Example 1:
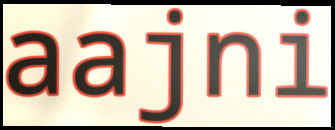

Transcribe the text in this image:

aajni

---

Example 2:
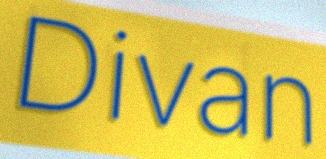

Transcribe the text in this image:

Divan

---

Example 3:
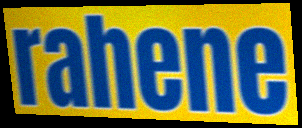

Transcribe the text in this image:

rahene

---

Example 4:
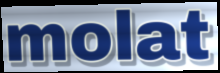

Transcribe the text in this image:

molat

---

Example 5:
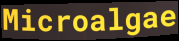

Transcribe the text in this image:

Microalgae